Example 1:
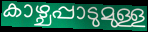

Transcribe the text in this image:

കാഴ്ചപ്പാടുമുള്ള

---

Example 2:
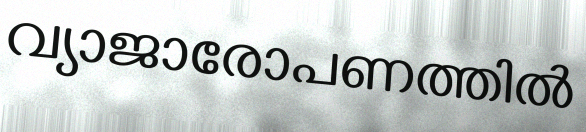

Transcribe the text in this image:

വ്യാജാരോപണത്തിൽ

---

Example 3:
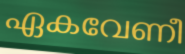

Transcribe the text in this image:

ഏകവേണീ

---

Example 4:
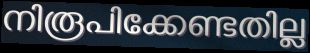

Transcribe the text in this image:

നിരൂപിക്കേണ്ടതില്ല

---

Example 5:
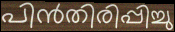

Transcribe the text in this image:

പിൻതിരിപ്പിച്ചു